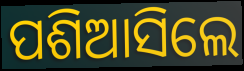
ପଶିଆସିଲେ